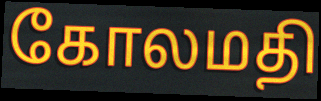
கோலமதி